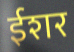
ईशर